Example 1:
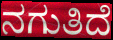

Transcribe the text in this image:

ನಗುತಿದೆ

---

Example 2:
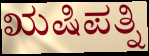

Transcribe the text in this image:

ಋಷಿಪತ್ನಿ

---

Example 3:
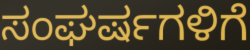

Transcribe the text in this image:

ಸಂಘರ್ಷಗಳಿಗೆ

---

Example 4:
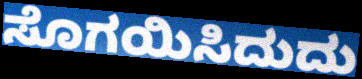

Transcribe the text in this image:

ಸೊಗಯಿಸಿದುದು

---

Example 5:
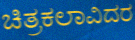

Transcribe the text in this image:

ಚಿತ್ರಕಲಾವಿದರ